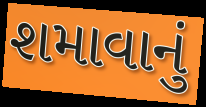
શમાવાનું